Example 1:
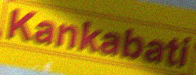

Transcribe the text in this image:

Kankabati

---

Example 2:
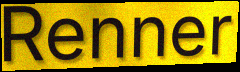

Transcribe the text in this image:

Renner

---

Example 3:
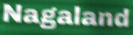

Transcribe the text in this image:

Nagaland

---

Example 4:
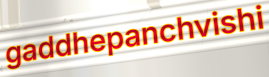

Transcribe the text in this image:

gaddhepanchvishi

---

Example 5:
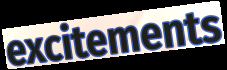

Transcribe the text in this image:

excitements